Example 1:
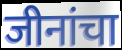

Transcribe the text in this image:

जीनांचा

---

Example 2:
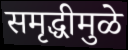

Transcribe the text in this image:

समृद्धीमुळे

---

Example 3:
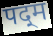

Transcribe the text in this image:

पद्‌म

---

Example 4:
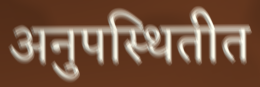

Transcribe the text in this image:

अनुपस्थितीत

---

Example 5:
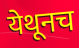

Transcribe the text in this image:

येथूनच